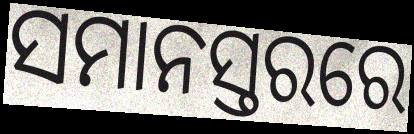
ସମାନସ୍ତରରେ